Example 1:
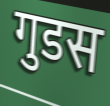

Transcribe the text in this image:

गुडस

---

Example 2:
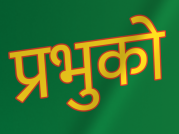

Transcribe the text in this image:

प्रभुको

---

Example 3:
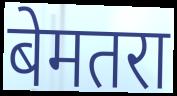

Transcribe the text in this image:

बेमतरा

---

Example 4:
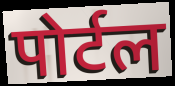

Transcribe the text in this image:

पोर्टल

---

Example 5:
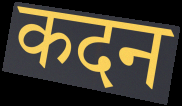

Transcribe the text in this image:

कदन